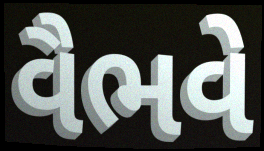
વૈભવે